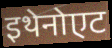
इथेनोएट